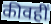
कीवहीं